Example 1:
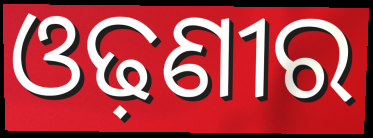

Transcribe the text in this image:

ଓଢ଼ଣୀର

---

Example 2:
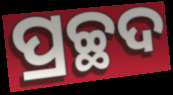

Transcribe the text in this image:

ପ୍ରଚ୍ଛଦ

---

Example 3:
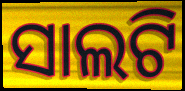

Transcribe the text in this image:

ସାଲଟି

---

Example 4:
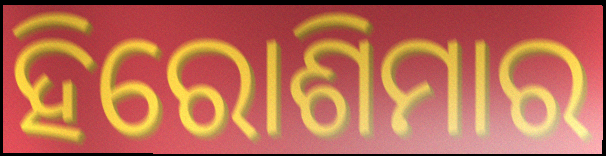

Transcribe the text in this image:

ହିରୋଶିମାର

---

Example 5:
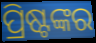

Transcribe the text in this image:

ପ୍ରିଷ୍ଟଙ୍କର